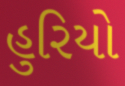
હુરિયો